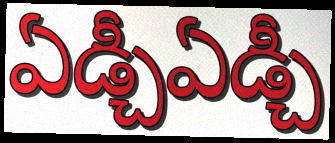
ఏడ్చీఏడ్చీ